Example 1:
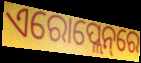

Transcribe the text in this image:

ଏରୋପ୍ଲେନ୍‌ରେ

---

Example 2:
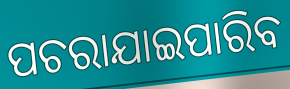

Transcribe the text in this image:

ପଚରାଯାଇପାରିବ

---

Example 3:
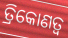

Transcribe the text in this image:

ତ୍ରିକୋଣତ୍ଵ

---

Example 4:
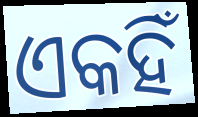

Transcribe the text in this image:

ଏକହିଁ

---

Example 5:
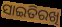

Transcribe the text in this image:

ସାଇତିରଖି